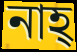
নাহ্